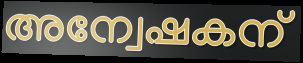
അന്വേഷകന്